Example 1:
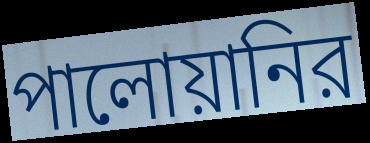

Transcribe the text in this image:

পালোয়ানির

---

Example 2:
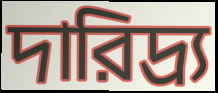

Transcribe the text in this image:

দারিদ্র্য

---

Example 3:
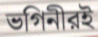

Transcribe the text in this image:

ভগিনীরই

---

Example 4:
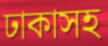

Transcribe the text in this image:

ঢাকাসহ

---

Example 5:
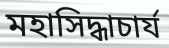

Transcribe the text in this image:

মহাসিদ্ধাচার্য